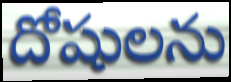
దోషులను